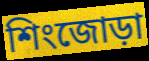
শিংজোড়া